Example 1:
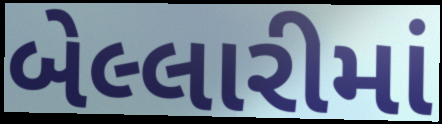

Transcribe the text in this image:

બેલ્લારીમાં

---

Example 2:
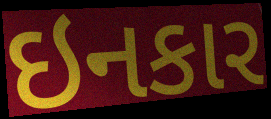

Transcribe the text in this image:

ઇનકાર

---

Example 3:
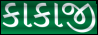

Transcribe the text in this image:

કાકાજી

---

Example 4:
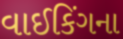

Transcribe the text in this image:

વાઈકિંગના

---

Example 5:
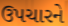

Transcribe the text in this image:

ઉપચારને